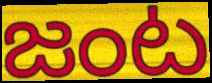
జంట